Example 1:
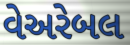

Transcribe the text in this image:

વેઅરેબલ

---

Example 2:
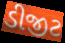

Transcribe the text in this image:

ડીજીટ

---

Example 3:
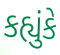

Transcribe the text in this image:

કહ્યુંકે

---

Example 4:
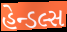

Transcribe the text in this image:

હેન્ડલ્સ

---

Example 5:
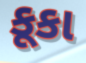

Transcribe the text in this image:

કૂકા